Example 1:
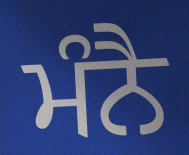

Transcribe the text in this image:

ਮੰਨੈ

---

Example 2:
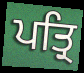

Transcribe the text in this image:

ਪਤ੍ਰਿ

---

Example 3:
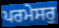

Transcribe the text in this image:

ਪਰਮੇਸਰੁ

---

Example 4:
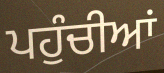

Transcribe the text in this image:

ਪਹੁੰਚੀਆਂ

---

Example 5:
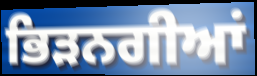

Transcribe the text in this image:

ਭਿੜਨਗੀਆਂ